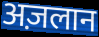
अज़लान